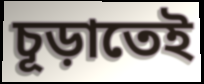
চূড়াতেই